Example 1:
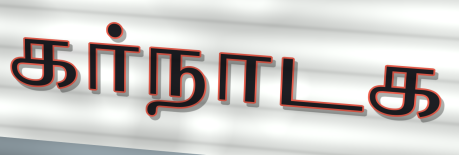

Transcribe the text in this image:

கர்நாடக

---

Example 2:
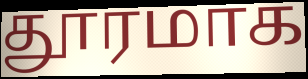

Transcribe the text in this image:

தூரமாக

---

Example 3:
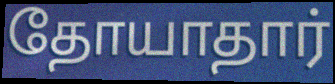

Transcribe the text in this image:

தோயாதார்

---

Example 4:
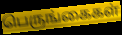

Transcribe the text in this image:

பெருங்கைகள்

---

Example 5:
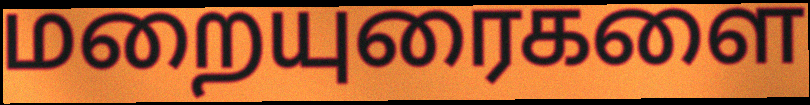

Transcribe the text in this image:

மறையுரைகளை